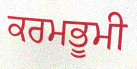
ਕਰਮਭੂਮੀ